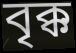
বৃক্ক